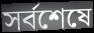
সর্বশেষে